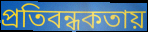
প্রতিবন্ধকতায়